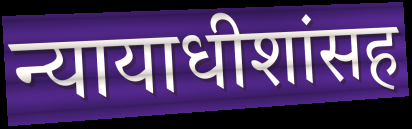
न्यायाधीशांसह